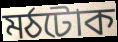
মঠটোক